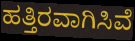
ಹತ್ತಿರವಾಗಿಸಿವೆ